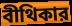
বীথিকার